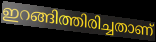
ഇറങ്ങിത്തിരിച്ചതാണ്